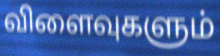
விளைவுகளும்